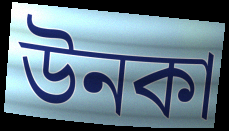
উনকা